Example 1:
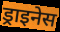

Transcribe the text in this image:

ड्राइनेस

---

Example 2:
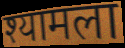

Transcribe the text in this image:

श्यामला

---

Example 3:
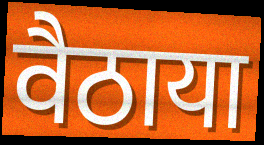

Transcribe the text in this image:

वैठाया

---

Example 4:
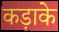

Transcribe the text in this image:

कड़ाके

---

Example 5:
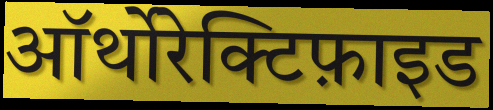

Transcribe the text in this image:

ऑर्थोरेक्टिफ़ाइड